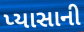
પ્યાસાની